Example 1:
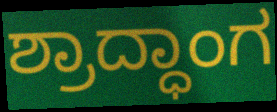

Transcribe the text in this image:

ಶ್ರಾದ್ಧಾಂಗ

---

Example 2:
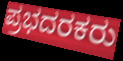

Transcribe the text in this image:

ಪ್ರಭದರಕರು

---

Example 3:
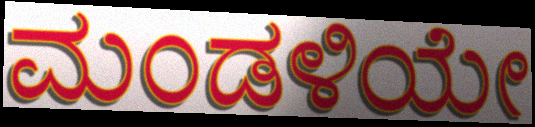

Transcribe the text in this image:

ಮಂಡಳಿಯೇ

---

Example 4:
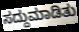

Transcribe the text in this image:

ಸದ್ದುಮಾಡಿತು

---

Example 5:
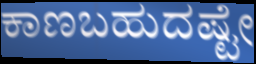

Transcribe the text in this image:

ಕಾಣಬಹುದಷ್ಟೇ